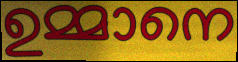
ഉമ്മാനെ